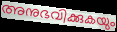
അനുഭവിക്കുകയും